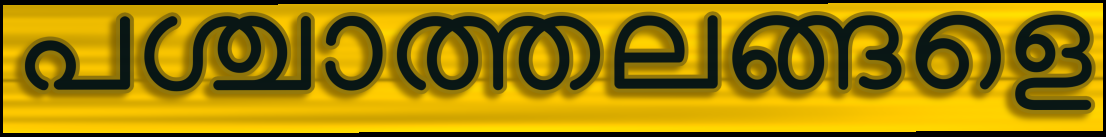
പശ്ചാത്തലങ്ങളെ